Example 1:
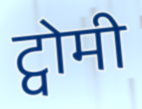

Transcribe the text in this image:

ट्वोमी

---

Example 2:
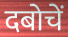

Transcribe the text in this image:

दबोचें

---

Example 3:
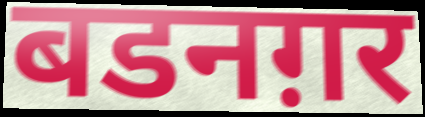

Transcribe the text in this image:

बडनग़र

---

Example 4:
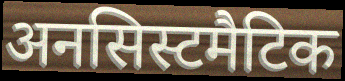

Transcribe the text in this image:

अनसिस्टमैटिक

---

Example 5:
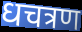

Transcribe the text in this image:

धचत्रण